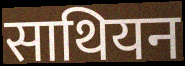
साथियन